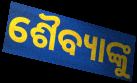
ଶୈବ୍ୟାଙ୍କୁ